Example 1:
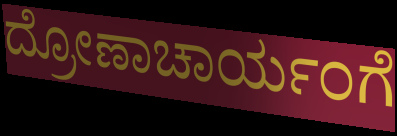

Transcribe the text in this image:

ದ್ರೋಣಾಚಾರ್ಯಂಗೆ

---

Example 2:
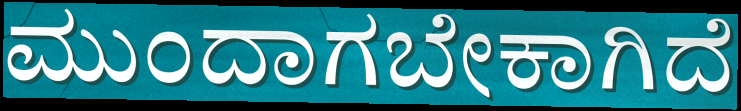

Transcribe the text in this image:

ಮುಂದಾಗಬೇಕಾಗಿದೆ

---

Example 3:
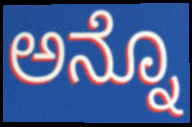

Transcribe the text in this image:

ಅನ್ನೊ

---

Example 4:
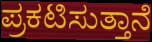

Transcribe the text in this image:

ಪ್ರಕಟಿಸುತ್ತಾನೆ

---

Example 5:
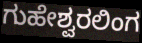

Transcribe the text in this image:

ಗುಹೇಶ್ವರಲಿಂಗ